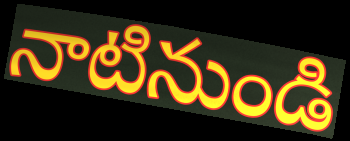
నాటినుండి